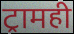
ट्रामही